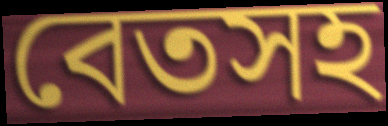
বেতসহ